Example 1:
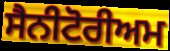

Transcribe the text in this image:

ਸੈਨੀਟੋਰੀਅਮ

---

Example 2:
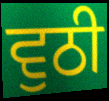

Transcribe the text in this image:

ਵੁਠੀ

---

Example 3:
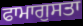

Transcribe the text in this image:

ਫਾਮਾਗੁਸਤਾ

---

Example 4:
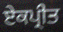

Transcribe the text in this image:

ਏਕਪ੍ਰੀਤ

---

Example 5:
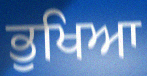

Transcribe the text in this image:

ਭੁਖਿਆ